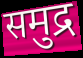
समुद्र